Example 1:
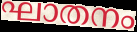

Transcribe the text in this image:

ഘാതനം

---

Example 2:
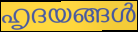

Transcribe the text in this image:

ഹൃദയങ്ങൾ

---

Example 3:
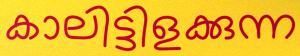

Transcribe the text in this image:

കാലിട്ടിളക്കുന്ന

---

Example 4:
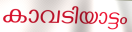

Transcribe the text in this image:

കാവടിയാട്ടം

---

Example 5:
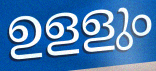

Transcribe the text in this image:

ഉളളും